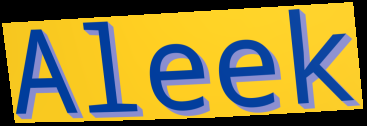
Aleek